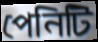
পেনিটি